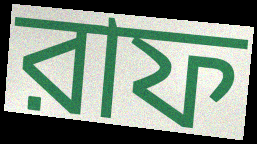
রাফ